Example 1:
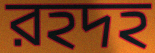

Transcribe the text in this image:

রহদহ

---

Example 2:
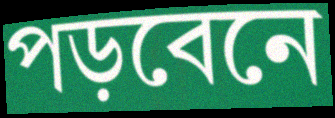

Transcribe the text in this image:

পড়বেনে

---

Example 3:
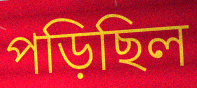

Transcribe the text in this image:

পড়িছিল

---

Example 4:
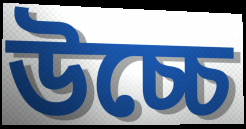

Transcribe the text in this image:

উচ্চে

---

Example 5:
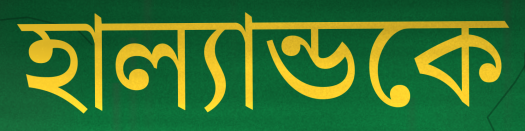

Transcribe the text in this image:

হাল্যান্ডকে